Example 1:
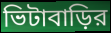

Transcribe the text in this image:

ভিটাবাড়ির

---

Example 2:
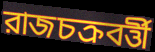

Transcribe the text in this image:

রাজচক্রবর্ত্তী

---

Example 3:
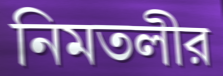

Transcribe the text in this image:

নিমতলীর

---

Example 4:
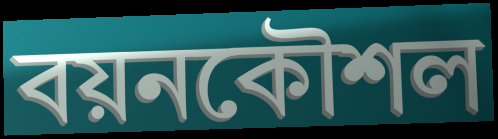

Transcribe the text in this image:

বয়নকৌশল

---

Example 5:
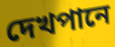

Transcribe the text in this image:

দেখপানে